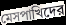
মেসপাখিদের